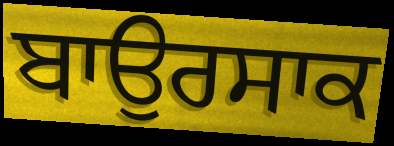
ਬਾਉਰਸਾਕ